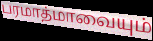
பரமாத்மாவையும்